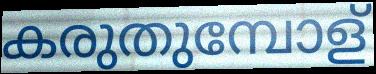
കരുതുമ്പോള്